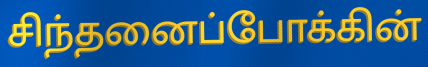
சிந்தனைப்போக்கின்